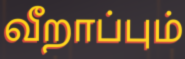
வீறாப்பும்